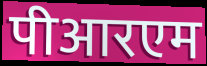
पीआरएम